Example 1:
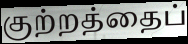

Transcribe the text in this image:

குற்றத்தைப்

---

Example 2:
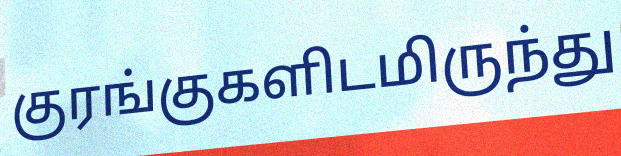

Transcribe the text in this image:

குரங்குகளிடமிருந்து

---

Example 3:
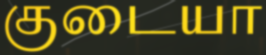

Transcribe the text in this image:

குடையா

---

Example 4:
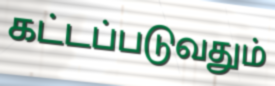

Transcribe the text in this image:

கட்டப்படுவதும்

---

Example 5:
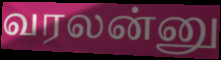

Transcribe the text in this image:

வரலன்னு